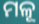
ମଳୂ